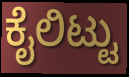
ಕೈಲಿಟ್ಟು